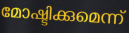
മോഷ്ടിക്കുമെന്ന്